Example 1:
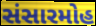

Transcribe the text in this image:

સંસારમોહ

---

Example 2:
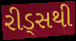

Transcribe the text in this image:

રીડ્સથી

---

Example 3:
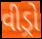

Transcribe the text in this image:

વીડ્રો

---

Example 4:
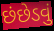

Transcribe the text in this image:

છંછેડવું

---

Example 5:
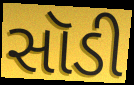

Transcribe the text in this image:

સૉડી